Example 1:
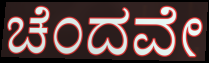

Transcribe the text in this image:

ಚೆಂದವೇ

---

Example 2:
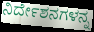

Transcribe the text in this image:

ನಿರ್ದೇಶನಗಳನ್ನ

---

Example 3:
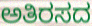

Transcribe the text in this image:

ಅತಿರಸದ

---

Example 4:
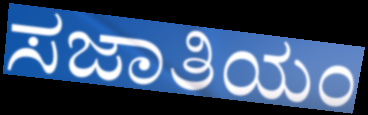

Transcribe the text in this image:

ಸಜಾತಿಯಂ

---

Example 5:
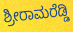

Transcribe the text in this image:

ಶ್ರೀರಾಮರೆಡ್ಡಿ